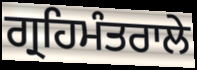
ਗ੍ਰਹਿਮੰਤਰਾਲੇ